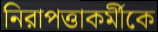
নিরাপত্তাকর্মীকে